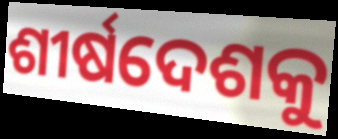
ଶୀର୍ଷଦେଶକୁ